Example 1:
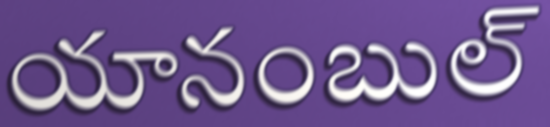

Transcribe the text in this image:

యానంబుల్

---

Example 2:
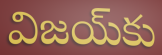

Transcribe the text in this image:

విజయ్‌కు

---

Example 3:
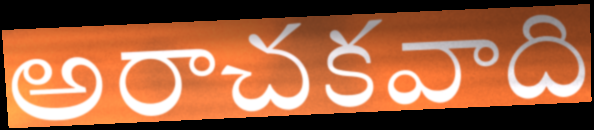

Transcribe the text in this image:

అరాచకవాది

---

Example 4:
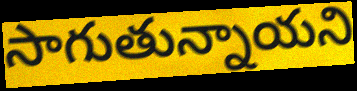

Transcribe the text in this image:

సాగుతున్నాయని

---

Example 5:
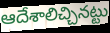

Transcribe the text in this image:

ఆదేశాలిచ్చినట్టు